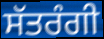
ਸੱਤਰੰਗੀ